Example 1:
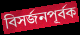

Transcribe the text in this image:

বিসর্জনপূর্বক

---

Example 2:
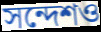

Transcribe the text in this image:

সন্দেশও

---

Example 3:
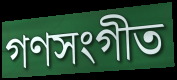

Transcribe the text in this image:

গণসংগীত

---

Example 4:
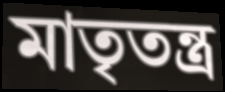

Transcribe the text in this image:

মাতৃতন্ত্র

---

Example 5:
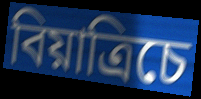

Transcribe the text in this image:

বিয়াত্রিচে